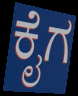
ಕೈಗ